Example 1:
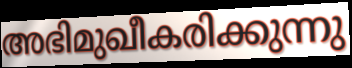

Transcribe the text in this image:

അഭിമുഖീകരിക്കുന്നു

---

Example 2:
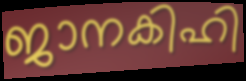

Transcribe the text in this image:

ജാനകിഹി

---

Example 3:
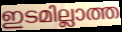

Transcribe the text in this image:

ഇടമില്ലാത്ത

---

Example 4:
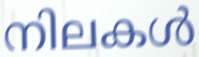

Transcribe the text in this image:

നിലകൾ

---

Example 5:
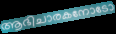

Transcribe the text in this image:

ആഭിചാരകനോടോ